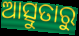
ଆତ୍ସୁତାରୁ